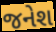
જનેશ